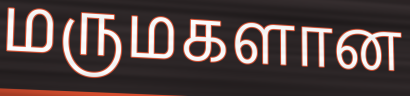
மருமகளான